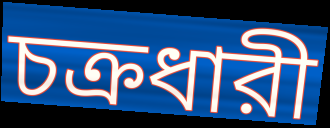
চক্রধারী